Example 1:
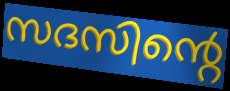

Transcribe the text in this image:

സദസിന്റെ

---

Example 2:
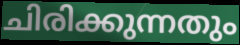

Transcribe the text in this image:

ചിരിക്കുന്നതും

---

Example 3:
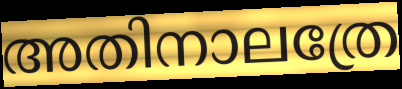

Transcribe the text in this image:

അതിനാലത്രേ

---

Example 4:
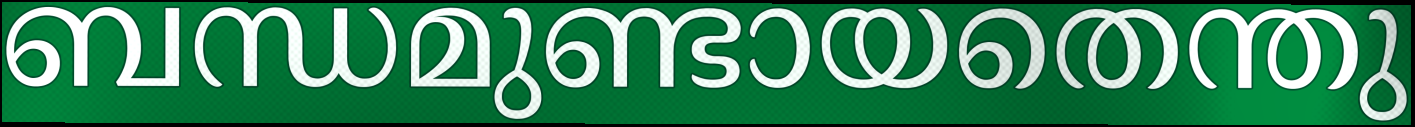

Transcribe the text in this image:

ബന്ധമുണ്ടായതെന്തു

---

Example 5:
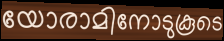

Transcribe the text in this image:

യോരാമിനോടുകൂടെ